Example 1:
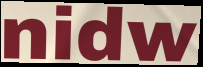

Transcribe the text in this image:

nidw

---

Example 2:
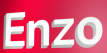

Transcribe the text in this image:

Enzo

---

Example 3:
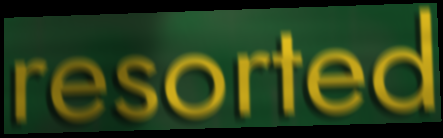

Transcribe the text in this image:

resorted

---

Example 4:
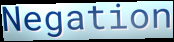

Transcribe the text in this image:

Negation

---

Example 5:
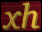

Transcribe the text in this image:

xh